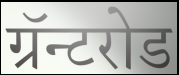
ग्रॅन्टरोड